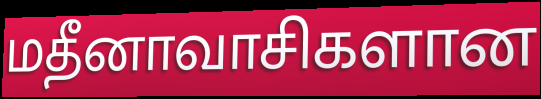
மதீனாவாசிகளான